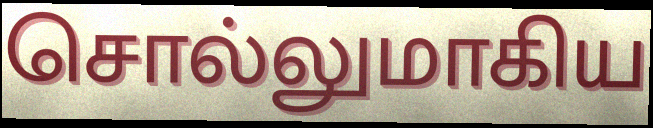
சொல்லுமாகிய